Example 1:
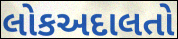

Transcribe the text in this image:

લોકઅદાલતો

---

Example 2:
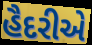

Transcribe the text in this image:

હૈદરીએ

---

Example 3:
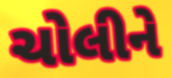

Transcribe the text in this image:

ચોલીને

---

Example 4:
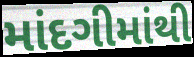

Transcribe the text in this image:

માંદગીમાંથી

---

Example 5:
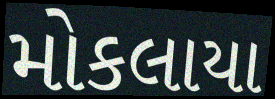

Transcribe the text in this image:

મોકલાયા